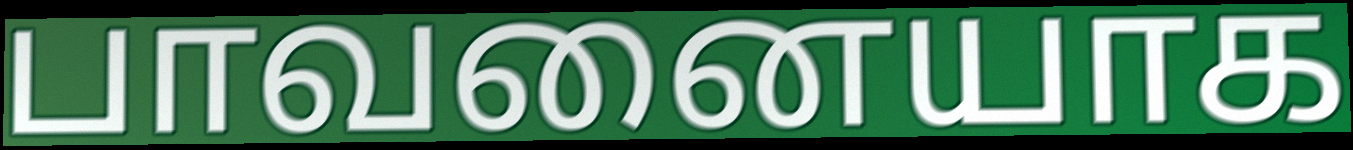
பாவனையாக